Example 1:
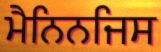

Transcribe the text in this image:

ਮੈਨਿਨਜਿਸ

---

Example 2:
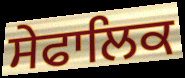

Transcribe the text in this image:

ਸੇਫਾਲਿਕ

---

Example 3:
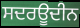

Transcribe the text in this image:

ਸਦਰਊਦੀਨ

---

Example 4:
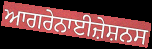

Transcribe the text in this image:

ਆਗਰੇਨਾਈਜ਼ੇਸ਼ਨਸ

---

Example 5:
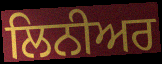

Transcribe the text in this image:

ਲਿਨੀਅਰ